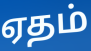
ஏதம்